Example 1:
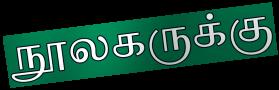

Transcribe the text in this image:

நூலகருக்கு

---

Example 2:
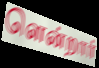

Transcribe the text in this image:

ளென்றார்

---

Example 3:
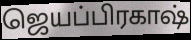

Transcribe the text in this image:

ஜெயப்பிரகாஷ்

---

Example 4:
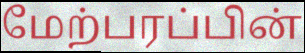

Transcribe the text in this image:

மேற்பரப்பின்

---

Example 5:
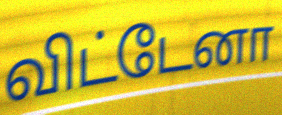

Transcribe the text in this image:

விட்டேனா